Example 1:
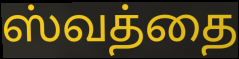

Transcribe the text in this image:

ஸ்வத்தை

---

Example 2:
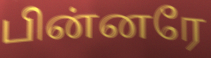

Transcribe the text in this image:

பின்னரே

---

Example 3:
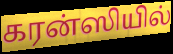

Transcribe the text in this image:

கரன்ஸியில்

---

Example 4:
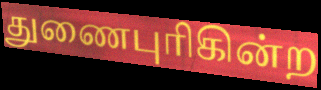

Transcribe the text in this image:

துணைபுரிகின்ற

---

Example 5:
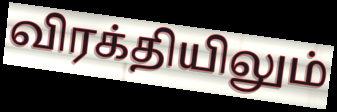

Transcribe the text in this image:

விரக்தியிலும்